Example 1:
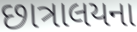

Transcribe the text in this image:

છાત્રાલયના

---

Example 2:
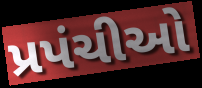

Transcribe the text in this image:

પ્રપંચીઓ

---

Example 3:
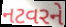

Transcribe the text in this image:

નટવરને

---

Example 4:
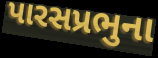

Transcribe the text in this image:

પારસપ્રભુના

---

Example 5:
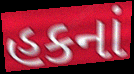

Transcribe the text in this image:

હકનાં